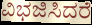
ವಿಭಜಿಸಿದರೆ